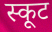
स्कूट